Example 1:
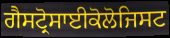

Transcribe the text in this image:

ਗੈਸਟ੍ਰੋਸਾਈਕੋਲੋਜਿਸਟ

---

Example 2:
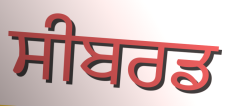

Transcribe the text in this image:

ਸੀਬਰਡ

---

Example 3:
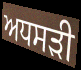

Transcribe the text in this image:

ਅਧਸੜੀ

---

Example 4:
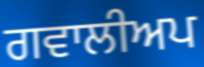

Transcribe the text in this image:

ਗਵਾਲੀਅਪ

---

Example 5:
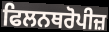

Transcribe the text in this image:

ਫਿਲਨਥਰੋਪੀਜ਼